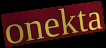
onekta